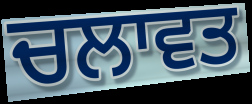
ਚਲਾਵਤ